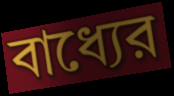
বাধ্যের